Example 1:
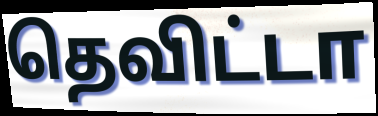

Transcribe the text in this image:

தெவிட்டா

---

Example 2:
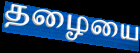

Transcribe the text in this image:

தழையை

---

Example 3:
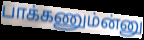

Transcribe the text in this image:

பாக்கணும்ன்னு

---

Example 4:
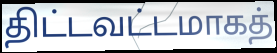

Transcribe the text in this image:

திட்டவட்டமாகத்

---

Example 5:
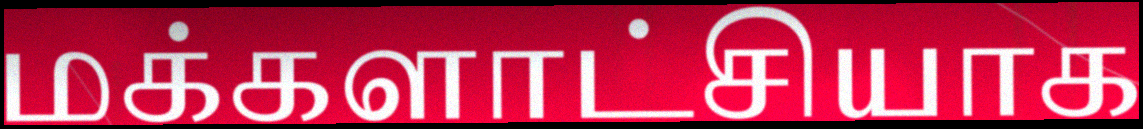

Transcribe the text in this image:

மக்களாட்சியாக